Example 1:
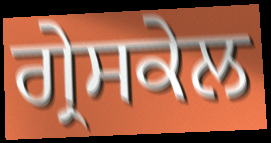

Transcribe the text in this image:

ਗ੍ਰੇਸਕੇਲ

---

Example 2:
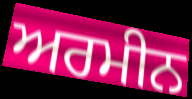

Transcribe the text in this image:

ਅਰਮੀਨ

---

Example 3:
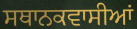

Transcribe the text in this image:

ਸਥਾਨਕਵਾਸੀਆਂ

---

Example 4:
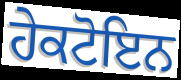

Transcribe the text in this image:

ਹੇਕਟੋਇਨ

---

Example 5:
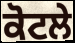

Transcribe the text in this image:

ਕੋਟਲੇ